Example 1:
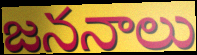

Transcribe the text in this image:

జననాలు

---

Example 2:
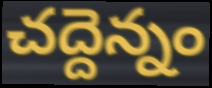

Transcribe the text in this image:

చద్దెన్నం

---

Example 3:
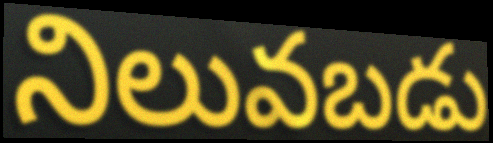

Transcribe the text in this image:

నిలువబడు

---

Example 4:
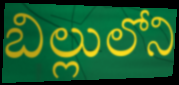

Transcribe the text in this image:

బిల్లులోని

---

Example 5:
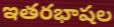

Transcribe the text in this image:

ఇతరభాషల